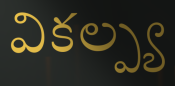
వికల్ప్య